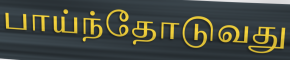
பாய்ந்தோடுவது